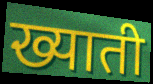
ख्याती